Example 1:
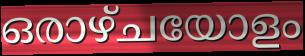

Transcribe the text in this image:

ഒരാഴ്ചയോളം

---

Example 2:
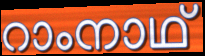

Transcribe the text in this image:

റാംനാഥ്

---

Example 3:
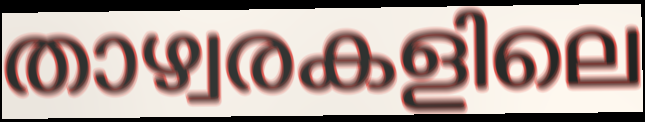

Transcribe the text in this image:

താഴ്വരകളിലെ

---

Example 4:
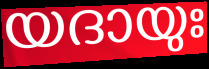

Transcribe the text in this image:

യദായുഃ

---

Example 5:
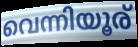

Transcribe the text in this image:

വെന്നിയൂര്